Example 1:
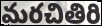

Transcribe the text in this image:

మరచితిరి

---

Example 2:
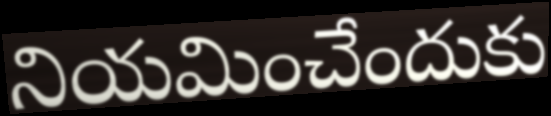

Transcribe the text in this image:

నియమించేందుకు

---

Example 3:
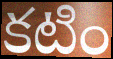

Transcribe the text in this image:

కటిం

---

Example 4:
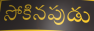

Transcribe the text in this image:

సోకినపుడు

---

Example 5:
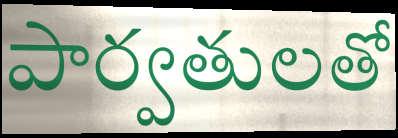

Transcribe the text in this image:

పార్వతులతో